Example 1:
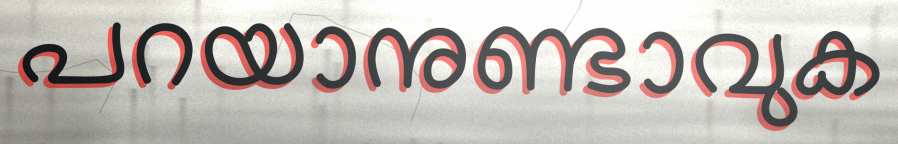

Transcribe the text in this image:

പറയാനുണ്ടാവുക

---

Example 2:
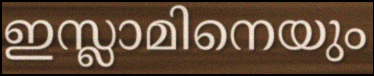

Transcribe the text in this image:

ഇസ്ലാമിനെയും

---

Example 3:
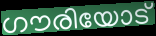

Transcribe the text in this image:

ഗൗരിയോട്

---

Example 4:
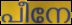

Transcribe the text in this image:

പീനേ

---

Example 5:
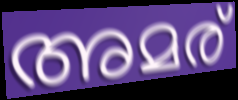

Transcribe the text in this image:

അമര്